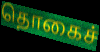
தொகைச்